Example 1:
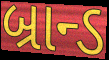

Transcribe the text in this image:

બ્રાન્ડ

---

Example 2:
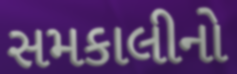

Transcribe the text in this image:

સમકાલીનો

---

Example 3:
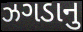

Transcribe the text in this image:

ઝગડાનુ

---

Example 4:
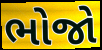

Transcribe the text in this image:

ભોજો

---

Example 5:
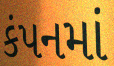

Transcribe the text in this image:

કંપનમાં